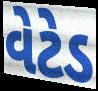
વેટેડ